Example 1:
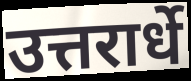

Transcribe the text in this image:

उत्तरार्धे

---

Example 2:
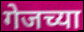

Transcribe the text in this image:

गेजच्या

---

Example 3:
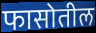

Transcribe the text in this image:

फासोतील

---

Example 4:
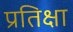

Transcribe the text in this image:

प्रतिक्षा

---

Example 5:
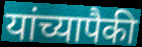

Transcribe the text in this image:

यांच्यापैकी